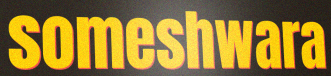
someshwara